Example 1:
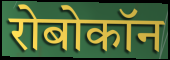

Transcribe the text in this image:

रोबोकॉन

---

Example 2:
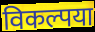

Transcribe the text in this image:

विकल्पया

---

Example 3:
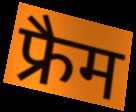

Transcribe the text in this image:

फ्रैम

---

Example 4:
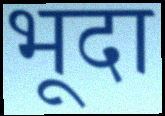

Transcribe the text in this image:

भूदा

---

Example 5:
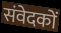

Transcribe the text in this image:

संवेदकों